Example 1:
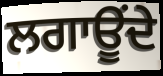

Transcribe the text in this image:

ਲਗਾਊਂਦੇ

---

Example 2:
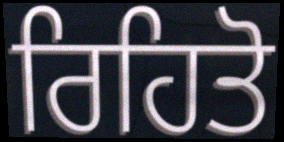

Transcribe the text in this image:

ਰਿਹਿਤੋ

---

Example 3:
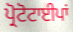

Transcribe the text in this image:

ਪ੍ਰੋਟੋਟਾਈਪਾਂ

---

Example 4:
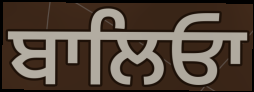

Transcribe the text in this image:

ਬਾਲਿਓਾ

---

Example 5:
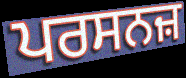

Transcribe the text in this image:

ਪਰਸਨਜ਼